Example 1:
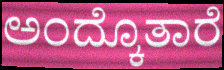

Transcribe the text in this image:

ಅಂದ್ಕೊತಾರೆ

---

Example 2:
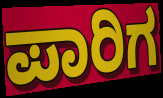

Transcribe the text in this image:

ಪಾರಿಗ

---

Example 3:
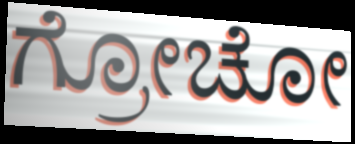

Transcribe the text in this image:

ಗ್ರೋಚೋ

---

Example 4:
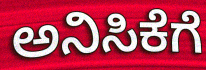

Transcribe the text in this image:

ಅನಿಸಿಕೆಗೆ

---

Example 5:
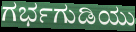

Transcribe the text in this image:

ಗರ್ಭಗುಡಿಯು